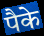
पैके